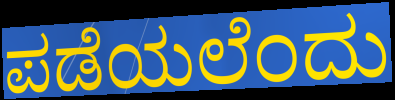
ಪಡೆಯಲೆಂದು